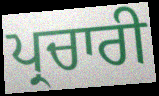
ਪ੍ਰਚਾਰੀ